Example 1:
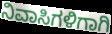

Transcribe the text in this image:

ನಿವಾಸಿಗಳಿಗಾಗಿ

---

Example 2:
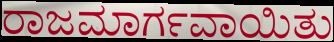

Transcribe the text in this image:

ರಾಜಮಾರ್ಗವಾಯಿತು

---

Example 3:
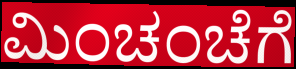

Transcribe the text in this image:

ಮಿಂಚಂಚೆಗೆ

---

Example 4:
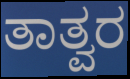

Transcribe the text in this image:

ತಾತ್ವರ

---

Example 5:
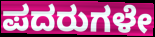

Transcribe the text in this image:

ಪದರುಗಳೇ